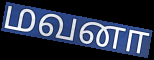
மவனா